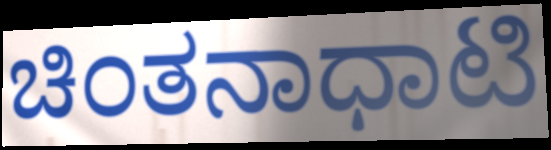
ಚಿಂತನಾಧಾಟಿ